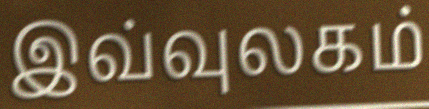
இவ்வுலகம்